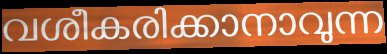
വശീകരിക്കാനാവുന്ന